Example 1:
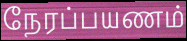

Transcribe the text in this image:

நேரப்பயணம்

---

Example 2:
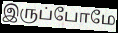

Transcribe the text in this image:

இருப்போமே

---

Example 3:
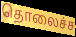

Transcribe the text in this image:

தொலைச்ச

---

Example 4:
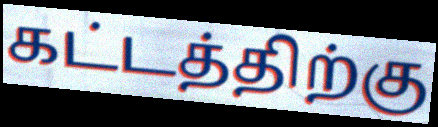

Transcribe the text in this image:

கட்டத்திற்கு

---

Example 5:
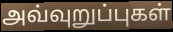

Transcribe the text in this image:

அவ்வுறுப்புகள்